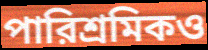
পারিশ্রমিকও